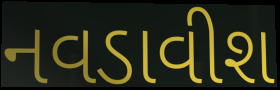
નવડાવીશ